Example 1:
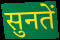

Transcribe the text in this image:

सुनतें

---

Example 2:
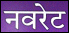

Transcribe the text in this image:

नवरेट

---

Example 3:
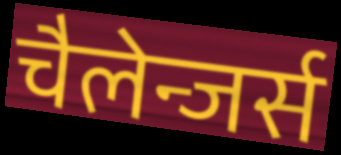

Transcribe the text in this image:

चैलेन्जर्स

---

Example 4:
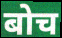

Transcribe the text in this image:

बोच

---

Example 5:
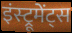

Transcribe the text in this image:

इंस्‍ट्रूमेंट्स